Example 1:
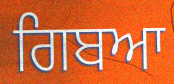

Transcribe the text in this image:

ਗਿਬਆ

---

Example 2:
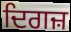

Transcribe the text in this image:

ਦਿਗਜ਼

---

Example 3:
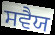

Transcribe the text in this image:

ਸਵੈਯ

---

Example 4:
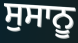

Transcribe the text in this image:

ਸੁਸਾਨੂ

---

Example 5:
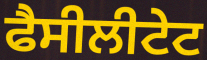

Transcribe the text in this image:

ਫੈਸੀਲੀਟੇਟ